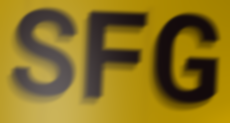
SFG